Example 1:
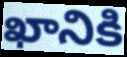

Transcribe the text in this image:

ఖానికి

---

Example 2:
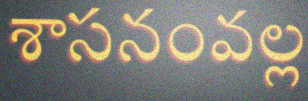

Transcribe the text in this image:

శాసనంవల్ల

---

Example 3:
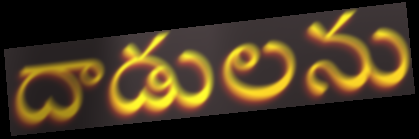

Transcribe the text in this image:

దాడులను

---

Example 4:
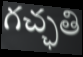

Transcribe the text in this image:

గచ్ఛతి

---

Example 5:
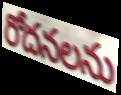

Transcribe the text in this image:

రోదనలను